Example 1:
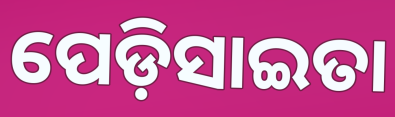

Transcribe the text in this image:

ପେଡ଼ିସାଇତା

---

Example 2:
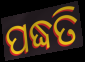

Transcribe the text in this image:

ପଦ୍ଧତି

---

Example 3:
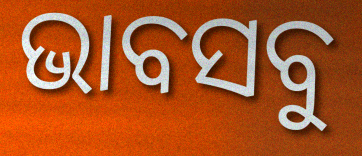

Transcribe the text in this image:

ଭାବସବୁ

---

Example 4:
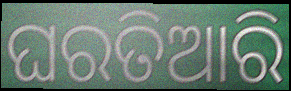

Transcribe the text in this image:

ଘରତିଆରି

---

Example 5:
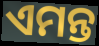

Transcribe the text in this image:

ଏମନ୍ତ